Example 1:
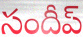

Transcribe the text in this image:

సందీప్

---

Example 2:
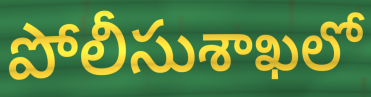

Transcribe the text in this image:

పోలీసుశాఖలో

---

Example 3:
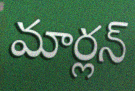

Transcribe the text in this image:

మార్లన్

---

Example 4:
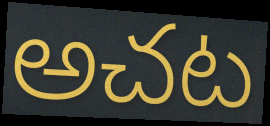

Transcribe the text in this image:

అచట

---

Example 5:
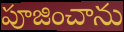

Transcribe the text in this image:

పూజించాను